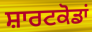
ਸ਼ਾਰਟਕੋਡਾਂ